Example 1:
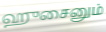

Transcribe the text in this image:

ஹுசைனும்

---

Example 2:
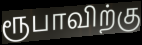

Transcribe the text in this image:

ரூபாவிற்கு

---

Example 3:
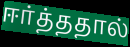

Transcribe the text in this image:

ஈர்த்ததால்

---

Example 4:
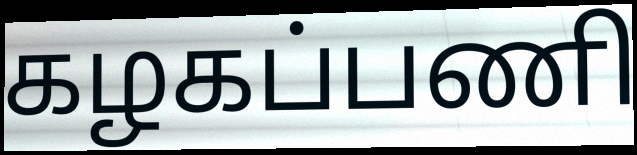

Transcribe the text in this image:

கழகப்பணி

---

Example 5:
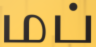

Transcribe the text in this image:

மப்